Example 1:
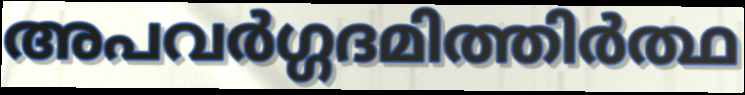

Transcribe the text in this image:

അപവർഗ്ഗദമിത്തിർത്ഥ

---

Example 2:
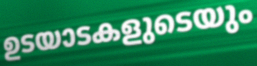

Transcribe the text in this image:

ഉടയാടകളുടെയും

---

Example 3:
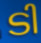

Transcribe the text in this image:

ടി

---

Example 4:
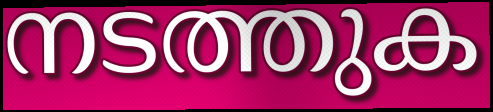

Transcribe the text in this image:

നടത്തുക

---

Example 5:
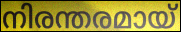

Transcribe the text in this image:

നിരന്തരമായ്